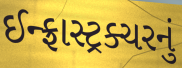
ઈન્ફ્રાસ્ટ્રક્ચરનું